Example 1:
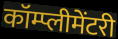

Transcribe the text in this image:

कॉम्प्लीमेंटरी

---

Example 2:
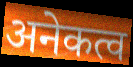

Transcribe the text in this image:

अनेकत्व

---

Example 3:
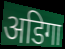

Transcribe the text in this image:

अडिगा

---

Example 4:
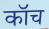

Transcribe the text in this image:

कॉच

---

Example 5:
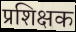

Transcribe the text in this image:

प्रशिक्षक